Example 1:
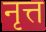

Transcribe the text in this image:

नृत्त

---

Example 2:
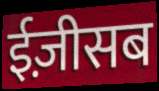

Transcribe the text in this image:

ईज़ीसब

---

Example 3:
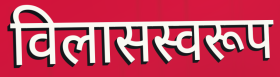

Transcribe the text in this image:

विलासस्वरूप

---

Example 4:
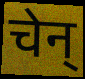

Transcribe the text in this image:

चेन्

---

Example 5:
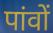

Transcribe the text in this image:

पांवों